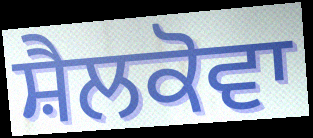
ਸ਼ੈਲਕੋਵਾ